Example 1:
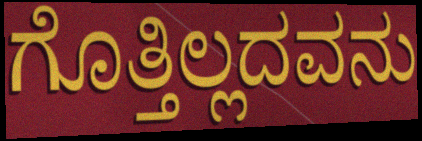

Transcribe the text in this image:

ಗೊತ್ತಿಲ್ಲದವನು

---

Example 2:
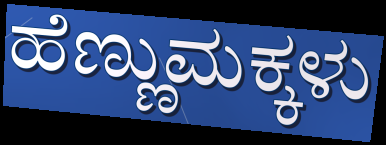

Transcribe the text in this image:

ಹೆಣ್ಣುಮಕ್ಕಳು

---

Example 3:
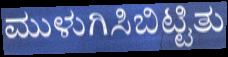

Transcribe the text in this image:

ಮುಳುಗಿಸಿಬಿಟ್ಟಿತು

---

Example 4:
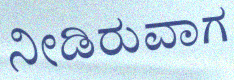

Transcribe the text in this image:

ನೀಡಿರುವಾಗ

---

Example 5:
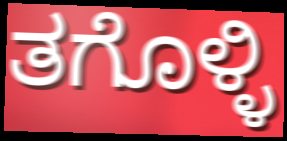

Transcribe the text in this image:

ತಗೊಳ್ಳಿ